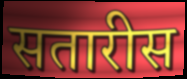
सतारीस